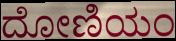
ದೋಣಿಯಂ